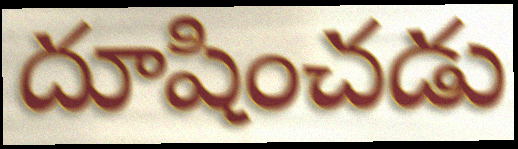
దూషించడు